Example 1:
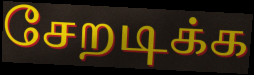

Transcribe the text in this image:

சேறடிக்க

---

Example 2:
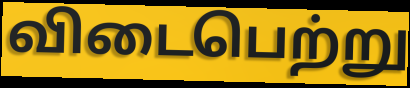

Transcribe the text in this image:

விடைபெற்று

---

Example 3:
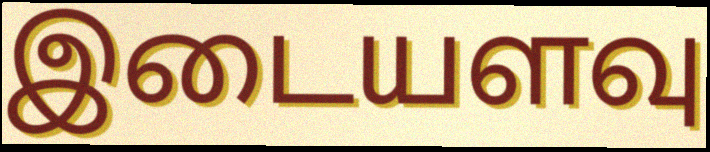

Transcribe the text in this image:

இடையளவு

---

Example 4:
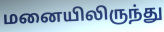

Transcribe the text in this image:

மனையிலிருந்து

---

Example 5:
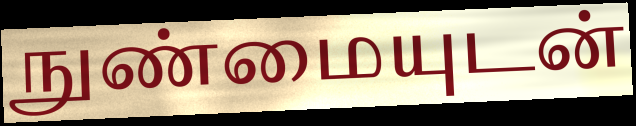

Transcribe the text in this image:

நுண்மையுடன்